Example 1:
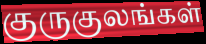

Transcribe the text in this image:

குருகுலங்கள்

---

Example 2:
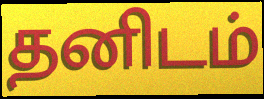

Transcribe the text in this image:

தனிடம்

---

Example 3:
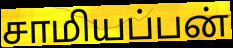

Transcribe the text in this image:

சாமியப்பன்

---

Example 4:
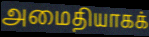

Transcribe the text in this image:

அமைதியாகக்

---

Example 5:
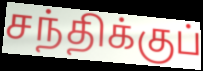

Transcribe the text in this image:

சந்திக்குப்